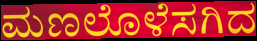
ಮಣಲೊಳೆಸಗಿದ